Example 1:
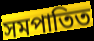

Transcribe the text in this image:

সমপাতিত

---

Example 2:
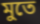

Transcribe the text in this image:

মুতে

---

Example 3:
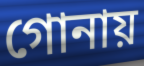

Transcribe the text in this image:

গোনায়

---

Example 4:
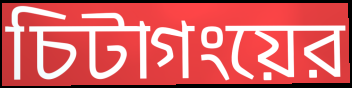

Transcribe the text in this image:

চিটাগংয়ের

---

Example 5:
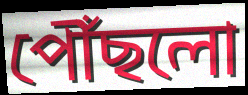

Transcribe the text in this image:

পৌঁছলো